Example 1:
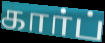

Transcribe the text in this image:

கார்ப்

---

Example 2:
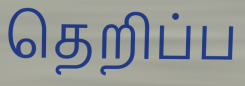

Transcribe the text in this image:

தெறிப்ப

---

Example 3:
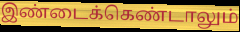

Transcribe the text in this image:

இண்டைக்கெண்டாலும்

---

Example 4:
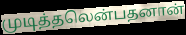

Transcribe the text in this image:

முடித்தலென்பதனான்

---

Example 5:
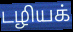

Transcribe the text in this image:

டழியக்